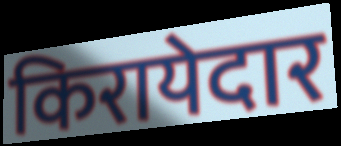
किरायेदार